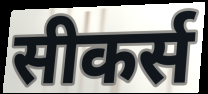
सीकर्स